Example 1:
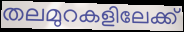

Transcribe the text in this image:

തലമുറകളിലേക്ക്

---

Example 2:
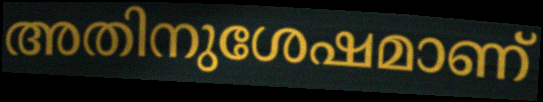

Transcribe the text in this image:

അതിനുശേഷമാണ്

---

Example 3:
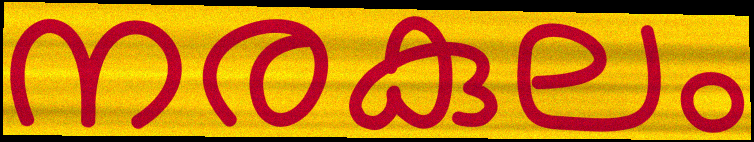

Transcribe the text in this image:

നരകുലം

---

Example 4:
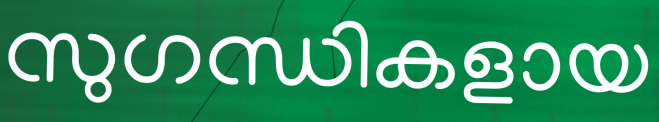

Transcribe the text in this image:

സുഗന്ധികളായ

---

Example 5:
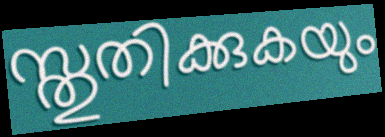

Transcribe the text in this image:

സ്തുതിക്കുകയും